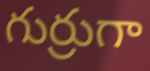
గుర్రుగా